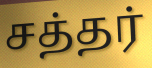
சத்தர்